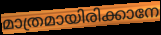
മാത്രമായിരിക്കാനേ